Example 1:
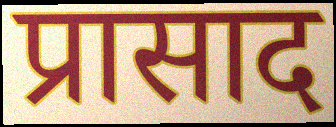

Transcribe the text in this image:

प्रासाद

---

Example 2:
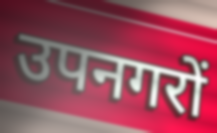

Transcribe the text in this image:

उपनगरों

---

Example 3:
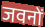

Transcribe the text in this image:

जवनों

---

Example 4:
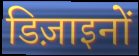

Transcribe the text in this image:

डिज़ाइनों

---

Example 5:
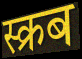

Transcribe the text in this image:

स्क्रब